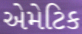
એમેટિક